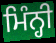
ਮਿੰਨ੍ਹੀ